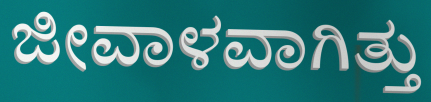
ಜೀವಾಳವಾಗಿತ್ತು